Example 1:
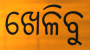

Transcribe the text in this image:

ଖେଳିବୁ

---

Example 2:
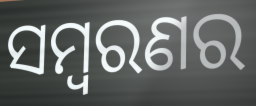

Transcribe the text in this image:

ସମ୍ବରଣର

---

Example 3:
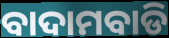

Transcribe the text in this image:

ବାଦାମବାଡି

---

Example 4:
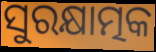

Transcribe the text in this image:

ସୁରକ୍ଷାତ୍ମକ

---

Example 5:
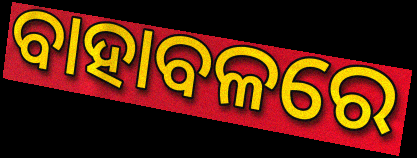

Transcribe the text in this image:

ବାହାବଳରେ